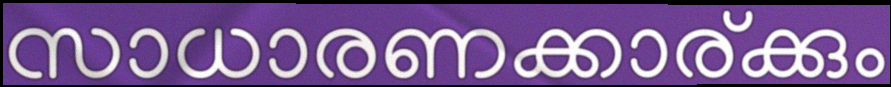
സാധാരണക്കാര്ക്കും